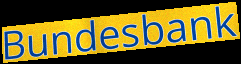
Bundesbank